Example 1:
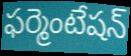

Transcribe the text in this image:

ఫర్మెంటేషన్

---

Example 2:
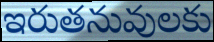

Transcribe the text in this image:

ఇరుతనువులకు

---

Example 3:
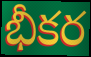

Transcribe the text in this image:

భీకర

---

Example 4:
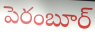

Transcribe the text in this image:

పెరంబూర్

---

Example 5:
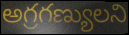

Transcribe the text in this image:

అగ్రగణ్యులని